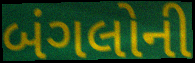
બંગલોની